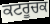
ਕਟਰੂਚਕ